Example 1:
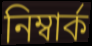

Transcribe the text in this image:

নিম্বাৰ্ক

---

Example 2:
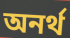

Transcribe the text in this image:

অনৰ্থ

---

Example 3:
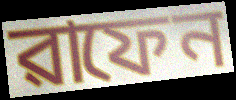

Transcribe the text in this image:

ৱাফেন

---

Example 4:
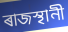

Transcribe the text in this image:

ৰাজস্থানী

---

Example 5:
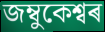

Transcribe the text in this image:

জম্বুকেশ্বৰ